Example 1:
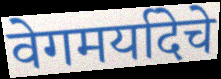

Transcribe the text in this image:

वेगमर्यादेचे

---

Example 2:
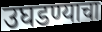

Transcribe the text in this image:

उघडण्याचा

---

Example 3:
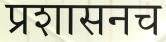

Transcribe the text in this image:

प्रशासनच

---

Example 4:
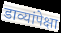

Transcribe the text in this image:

डाव्यांपेक्षा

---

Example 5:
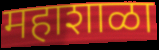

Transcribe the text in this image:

महाशाळा